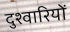
दुश्वारियों